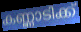
കണ്ണാടിക്ക്